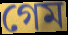
গেম